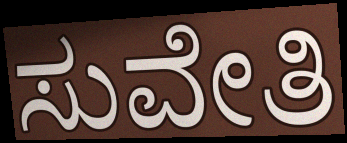
ಸುವೇತಿ